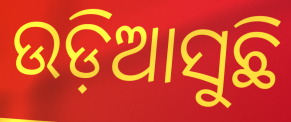
ଉଡ଼ିଆସୁଛି